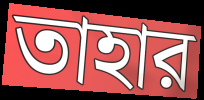
তাহার